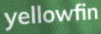
yellowfin